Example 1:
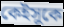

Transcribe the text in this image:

কেইসুকে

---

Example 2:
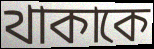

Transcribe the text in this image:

থাকাকে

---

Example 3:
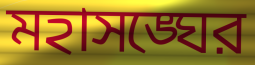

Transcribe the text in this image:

মহাসঙ্ঘের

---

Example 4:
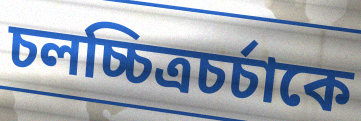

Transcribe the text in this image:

চলচ্চিত্রচর্চাকে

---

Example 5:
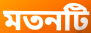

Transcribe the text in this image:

মতনটি